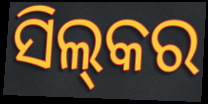
ସିଲ୍‍କର